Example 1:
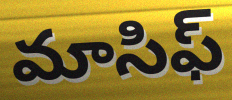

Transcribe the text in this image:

మాసిఫ్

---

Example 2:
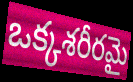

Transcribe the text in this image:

ఒక్కశరీరమై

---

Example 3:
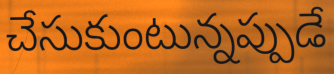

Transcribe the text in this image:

చేసుకుంటున్నప్పుడే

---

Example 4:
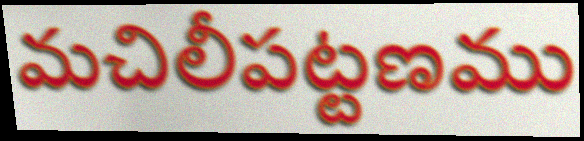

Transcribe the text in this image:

మచిలీపట్టణము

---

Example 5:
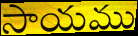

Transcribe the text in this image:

సాయము